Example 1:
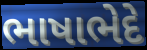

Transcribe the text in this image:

ભાષાભેદે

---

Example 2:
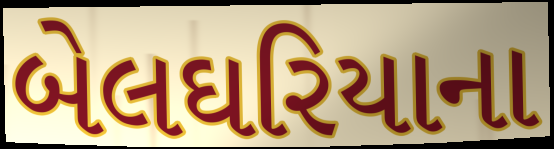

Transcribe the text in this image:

બેલઘરિયાના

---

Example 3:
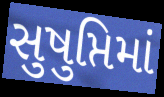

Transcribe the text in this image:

સુષુપ્તિમાં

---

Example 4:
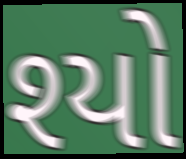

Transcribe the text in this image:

શ્યો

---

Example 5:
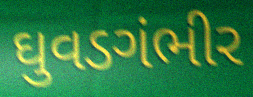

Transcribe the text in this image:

ઘુવડગંભીર